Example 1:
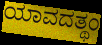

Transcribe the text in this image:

ಯಾವದತ್ಥಂ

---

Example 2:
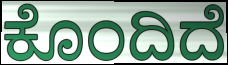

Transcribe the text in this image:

ಕೊಂದಿದೆ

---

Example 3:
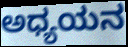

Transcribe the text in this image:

ಅಧ್ಯಯನ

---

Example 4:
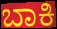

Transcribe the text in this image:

ಬಾಕಿ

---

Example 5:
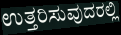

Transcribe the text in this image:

ಉತ್ತರಿಸುವುದರಲ್ಲಿ